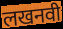
लखनवी